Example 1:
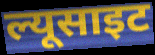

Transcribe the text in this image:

ल्यूसाइट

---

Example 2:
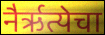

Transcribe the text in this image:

नैर्ऋत्येचा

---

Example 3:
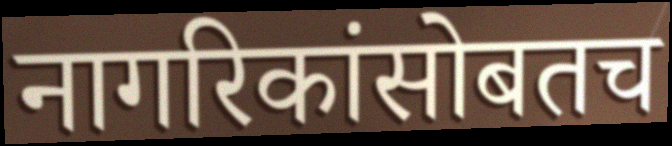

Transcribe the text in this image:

नागरिकांसोबतच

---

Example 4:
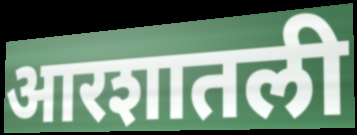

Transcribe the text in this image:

आरशातली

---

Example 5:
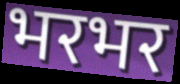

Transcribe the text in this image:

भरभर